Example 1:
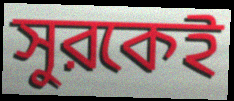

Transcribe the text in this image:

সুরকেই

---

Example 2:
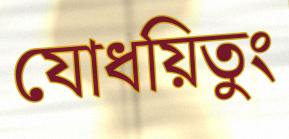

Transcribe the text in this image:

যোধয়িতুং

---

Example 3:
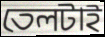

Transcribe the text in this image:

তেলটাই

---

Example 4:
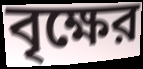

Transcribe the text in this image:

বৃক্ষের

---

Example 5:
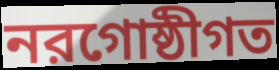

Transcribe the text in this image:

নরগোষ্ঠীগত